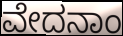
ವೇದನಾಂ